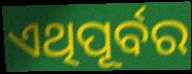
ଏଥିପୂର୍ବର